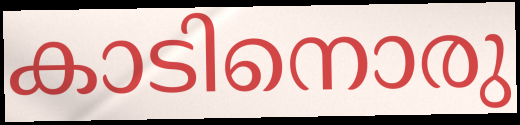
കാടിനൊരു